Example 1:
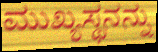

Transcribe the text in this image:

ಮುಖ್ಯಸ್ಥನನ್ನು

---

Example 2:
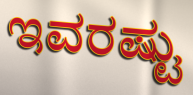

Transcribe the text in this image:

ಇವರಷ್ಟು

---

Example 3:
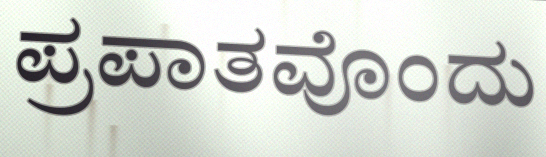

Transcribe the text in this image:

ಪ್ರಪಾತವೊಂದು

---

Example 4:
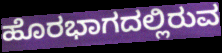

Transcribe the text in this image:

ಹೊರಭಾಗದಲ್ಲಿರುವ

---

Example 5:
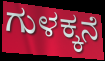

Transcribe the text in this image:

ಗುಳಕ್ಕನೆ